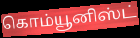
கொம்யூனிஸ்ட்